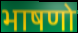
भाषणो